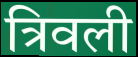
त्रिवली